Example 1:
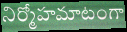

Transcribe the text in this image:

నిర్మోహమాటంగా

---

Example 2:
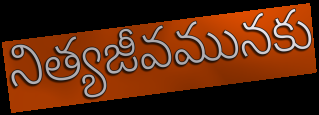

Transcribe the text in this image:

నిత్యజీవమునకు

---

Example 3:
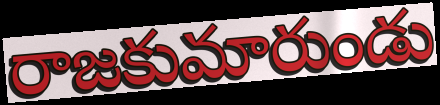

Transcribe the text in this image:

రాజకుమారుండు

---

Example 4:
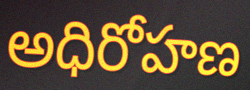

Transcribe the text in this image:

అధిరోహణ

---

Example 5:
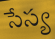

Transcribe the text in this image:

సేస్య